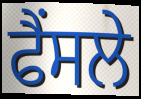
ਫੈਂਸਲੇ